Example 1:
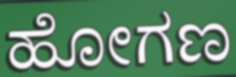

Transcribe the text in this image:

ಹೋಗಣ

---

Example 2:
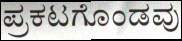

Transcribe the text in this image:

ಪ್ರಕಟಗೊಂಡವು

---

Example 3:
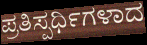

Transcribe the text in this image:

ಪ್ರತಿಸ್ಪರ್ಧಿಗಳಾದ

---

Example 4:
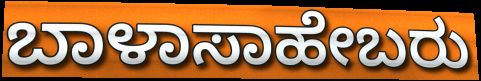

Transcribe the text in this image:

ಬಾಳಾಸಾಹೇಬರು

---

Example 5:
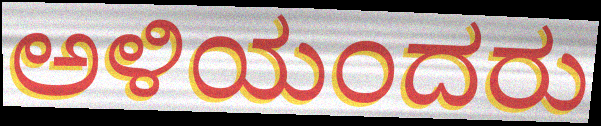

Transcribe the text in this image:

ಅಳಿಯಂದರು